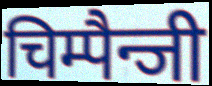
चिम्पैन्जी